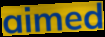
aimed